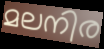
മലനിര